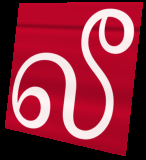
லீ